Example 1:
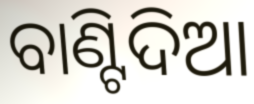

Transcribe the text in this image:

ବାଣ୍ଟିଦିଆ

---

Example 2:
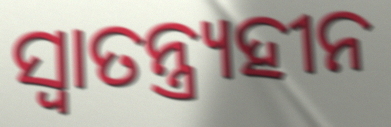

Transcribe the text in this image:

ସ୍ଵାତନ୍ତ୍ର୍ୟହୀନ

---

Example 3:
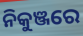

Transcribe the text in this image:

ନିକୁଞ୍ଜରେ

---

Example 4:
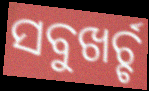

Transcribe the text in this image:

ସବୁଖର୍ଚ୍ଚ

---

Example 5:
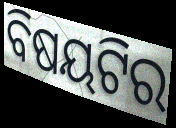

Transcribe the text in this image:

ବିଷୟଟିର